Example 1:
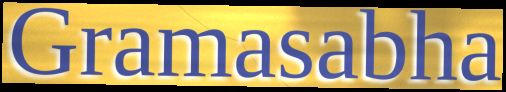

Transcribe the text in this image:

Gramasabha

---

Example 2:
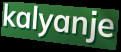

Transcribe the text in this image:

kalyanje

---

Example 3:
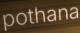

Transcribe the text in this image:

pothana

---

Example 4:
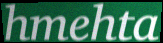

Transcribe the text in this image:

hmehta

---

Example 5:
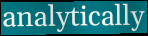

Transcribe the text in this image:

analytically